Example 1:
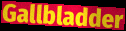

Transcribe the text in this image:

Gallbladder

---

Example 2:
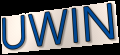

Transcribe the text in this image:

UWIN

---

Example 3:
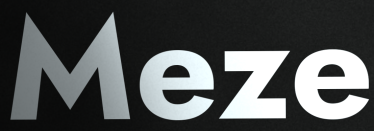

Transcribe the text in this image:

Meze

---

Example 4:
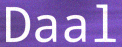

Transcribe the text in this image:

Daal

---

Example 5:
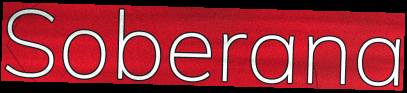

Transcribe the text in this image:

Soberana